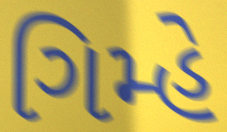
ગિમ્હે